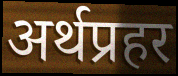
अर्थप्रहर